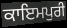
ਕਾਇਮਪੁਰੀ